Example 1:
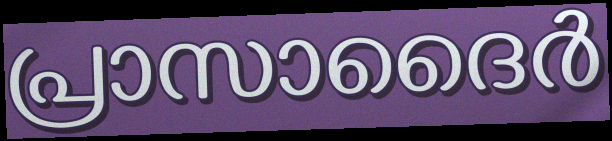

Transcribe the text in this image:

പ്രാസാദൈർ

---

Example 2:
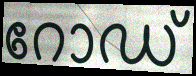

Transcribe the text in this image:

റോഡ്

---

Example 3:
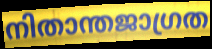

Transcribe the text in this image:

നിതാന്തജാഗ്രത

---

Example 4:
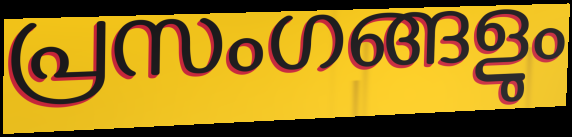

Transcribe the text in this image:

പ്രസംഗങ്ങളും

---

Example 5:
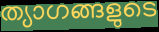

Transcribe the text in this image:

ത്യാഗങ്ങളുടെ